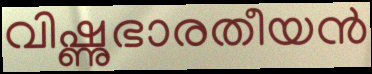
വിഷ്ണുഭാരതീയൻ